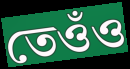
তেওঁও